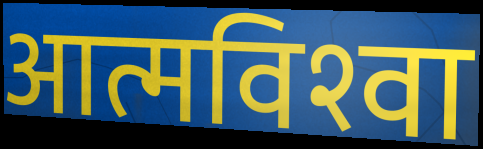
आत्मविश्वा